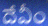
దేవీం